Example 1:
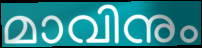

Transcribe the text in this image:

മാവിനും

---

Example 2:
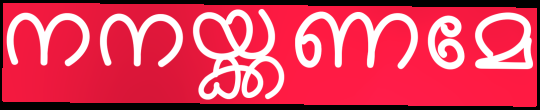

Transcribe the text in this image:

നനയ്ക്കണമേ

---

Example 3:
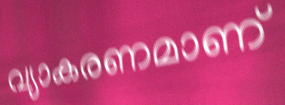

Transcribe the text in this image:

വ്യാകരണമാണ്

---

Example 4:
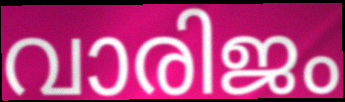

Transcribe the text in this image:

വാരിജം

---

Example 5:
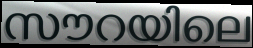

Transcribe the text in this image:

സൗറയിലെ